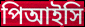
পিআইসি